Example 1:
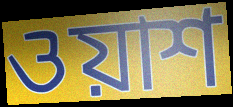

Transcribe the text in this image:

ওয়াশ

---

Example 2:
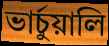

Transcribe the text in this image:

ভার্চুয়ালি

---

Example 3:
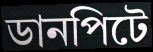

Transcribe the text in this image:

ডানপিটে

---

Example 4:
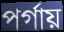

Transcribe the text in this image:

পর্গায়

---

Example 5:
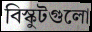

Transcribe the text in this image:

বিস্কুটগুলো